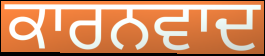
ਕਾਰਨਵਾਦ